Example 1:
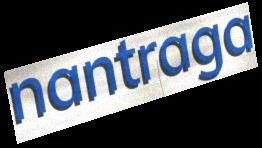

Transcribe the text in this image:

nantraga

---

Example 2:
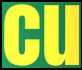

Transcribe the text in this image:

cu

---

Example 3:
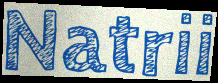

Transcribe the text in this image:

Natrii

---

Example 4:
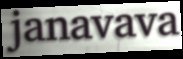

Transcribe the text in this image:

janavava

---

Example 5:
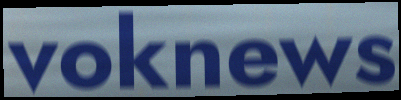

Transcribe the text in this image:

voknews